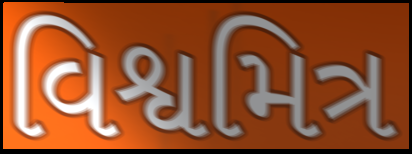
વિશ્વમિત્ર